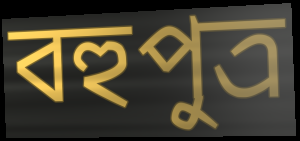
বহুপুত্র